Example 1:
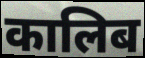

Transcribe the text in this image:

कालिब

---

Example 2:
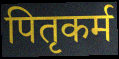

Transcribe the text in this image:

पितृकर्म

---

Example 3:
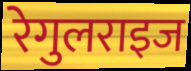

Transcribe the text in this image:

रेगुलराइज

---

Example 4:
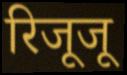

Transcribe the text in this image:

रिजूजू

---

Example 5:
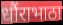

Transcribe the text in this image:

धौंराभाठा